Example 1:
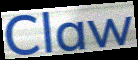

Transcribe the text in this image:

Claw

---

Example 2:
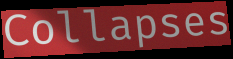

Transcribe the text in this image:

Collapses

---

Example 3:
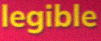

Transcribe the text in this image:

legible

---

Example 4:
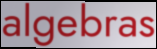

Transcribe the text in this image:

algebras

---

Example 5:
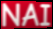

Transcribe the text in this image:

NAI